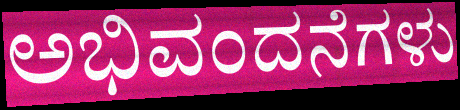
ಅಭಿವಂದನೆಗಳು